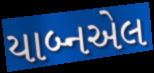
યાબ્નએલ